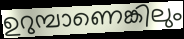
ഉറുമ്പാണെങ്കിലും